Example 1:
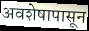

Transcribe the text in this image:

अवशेषापासून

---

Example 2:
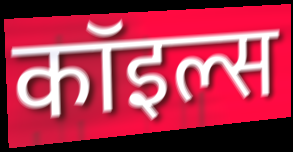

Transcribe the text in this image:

कॉइल्स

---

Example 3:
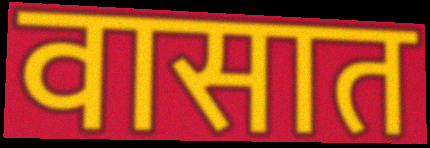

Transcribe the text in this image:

वासात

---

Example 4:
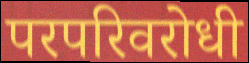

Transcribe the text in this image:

परपरिवरोधी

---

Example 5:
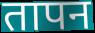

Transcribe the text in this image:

तापन